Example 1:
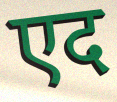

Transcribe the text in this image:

एद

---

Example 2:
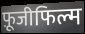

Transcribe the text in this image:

फ़ूजीफिल्म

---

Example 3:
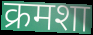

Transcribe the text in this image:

क्रमशा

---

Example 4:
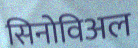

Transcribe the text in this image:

सिनोविअल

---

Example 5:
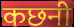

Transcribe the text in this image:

कछनी